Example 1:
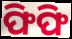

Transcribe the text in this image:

ଫିଫି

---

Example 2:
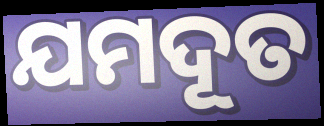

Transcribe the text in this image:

ଯମଦୂତ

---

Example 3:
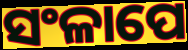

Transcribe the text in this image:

ସଂଳାପେ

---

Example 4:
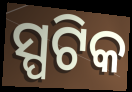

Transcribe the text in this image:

ସ୍ପଟିକ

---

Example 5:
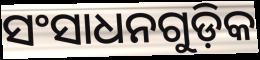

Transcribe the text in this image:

ସଂସାଧନଗୁଡ଼ିକ